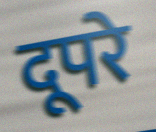
दूपरे